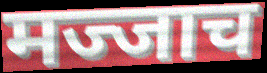
मज्जाच